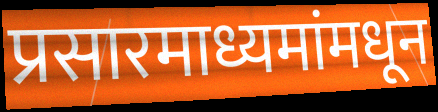
प्रसारमाध्यमांमधून